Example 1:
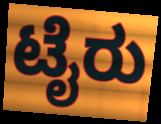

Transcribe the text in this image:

ಟೈರು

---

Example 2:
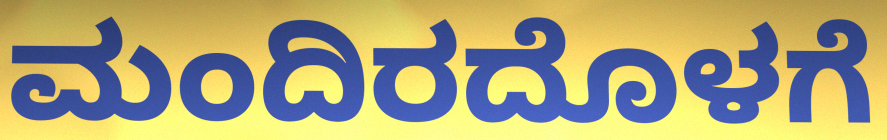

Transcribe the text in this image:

ಮಂದಿರದೊಳಗೆ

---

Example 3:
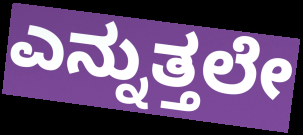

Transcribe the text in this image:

ಎನ್ನುತ್ತಲೇ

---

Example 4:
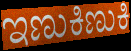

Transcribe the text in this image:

ಇಣುಕಿಣುಕಿ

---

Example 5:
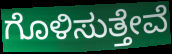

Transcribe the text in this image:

ಗೊಳಿಸುತ್ತೇವೆ